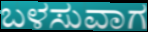
ಬಳಸುವಾಗ